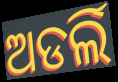
ଅଡର୍ଲି